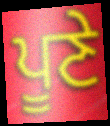
ਪੂਣੇ